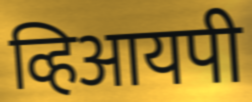
व्हिआयपी